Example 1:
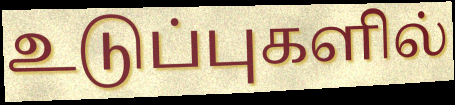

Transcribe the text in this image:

உடுப்புகளில்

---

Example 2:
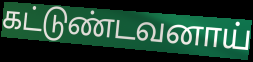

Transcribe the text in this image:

கட்டுண்டவனாய்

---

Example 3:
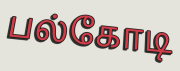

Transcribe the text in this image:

பல்கோடி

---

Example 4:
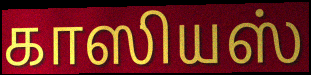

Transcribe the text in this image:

காஸியஸ்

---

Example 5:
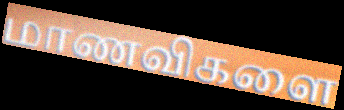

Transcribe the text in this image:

மாணவிகளை